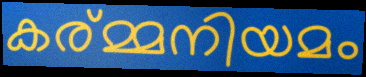
കര്മ്മനിയമം